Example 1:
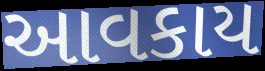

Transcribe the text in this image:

આવકાય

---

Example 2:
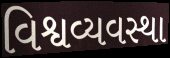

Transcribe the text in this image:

વિશ્વવ્યવસ્થા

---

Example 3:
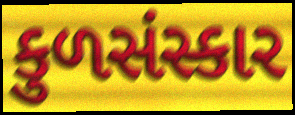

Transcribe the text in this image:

કુળસંસ્કાર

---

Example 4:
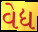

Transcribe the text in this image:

વેદ્ય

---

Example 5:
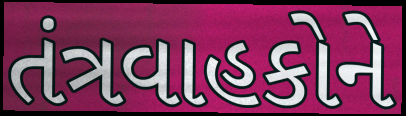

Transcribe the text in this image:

તંત્રવાહકોને